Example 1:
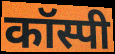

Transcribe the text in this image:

कॉस्पी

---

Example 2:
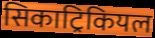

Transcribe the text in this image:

सिकाट्रिकियल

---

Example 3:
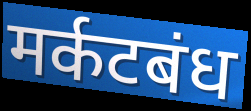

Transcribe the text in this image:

मर्कटबंध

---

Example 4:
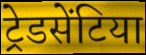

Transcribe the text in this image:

ट्रेडसेंटिया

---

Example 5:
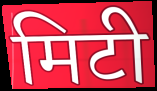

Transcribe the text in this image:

मिटी